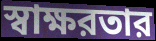
স্বাক্ষরতার